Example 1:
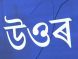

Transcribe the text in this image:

উওৰ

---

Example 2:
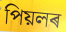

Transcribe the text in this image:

পিয়লৰ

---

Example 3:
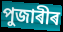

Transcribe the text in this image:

পুজাৰীৰ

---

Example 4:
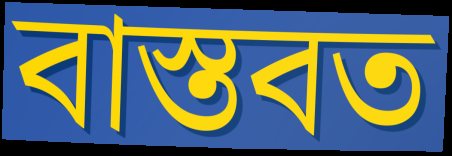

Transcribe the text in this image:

বাস্তবত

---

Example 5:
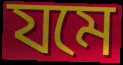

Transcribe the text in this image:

যমে